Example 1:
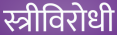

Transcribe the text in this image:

स्त्रीविरोधी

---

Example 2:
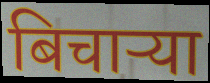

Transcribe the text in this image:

बिचाऱ्या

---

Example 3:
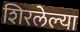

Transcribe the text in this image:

शिरलेल्या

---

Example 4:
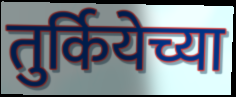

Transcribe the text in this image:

तुर्कियेच्या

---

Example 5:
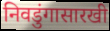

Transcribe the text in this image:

निवडुंगासारखी